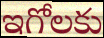
ఇగోలకు